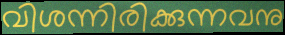
വിശന്നിരിക്കുന്നവനു